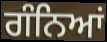
ਗੰਨਿਆਂ